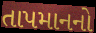
તાપમાનનો